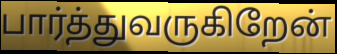
பார்த்துவருகிறேன்